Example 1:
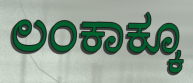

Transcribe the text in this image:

ಲಂಕಾಕ್ಕೂ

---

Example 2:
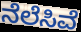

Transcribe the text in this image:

ನೆಲೆಸಿವೆ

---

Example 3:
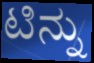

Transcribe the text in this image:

ಟಿನ್ನು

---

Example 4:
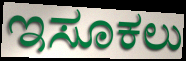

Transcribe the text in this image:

ಇಸೂಕಲು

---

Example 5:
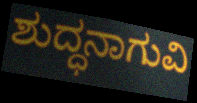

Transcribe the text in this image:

ಶುದ್ಧನಾಗುವಿ